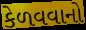
કેળવવાનો